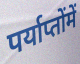
पर्याप्तोंमें